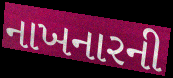
નાખનારની